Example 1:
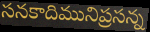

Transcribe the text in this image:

సనకాదిమునిప్రసన్న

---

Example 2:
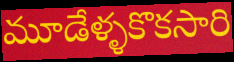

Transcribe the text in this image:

మూడేళ్ళకొకసారి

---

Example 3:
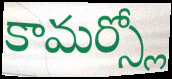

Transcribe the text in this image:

కామర్స్లో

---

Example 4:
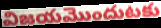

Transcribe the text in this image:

విజయమొందుటకు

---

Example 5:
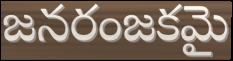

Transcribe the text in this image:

జనరంజకమై